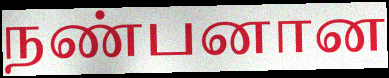
நண்பனான